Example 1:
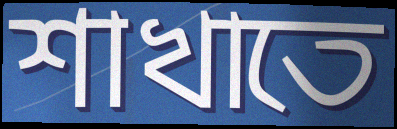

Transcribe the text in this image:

শাখাতে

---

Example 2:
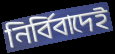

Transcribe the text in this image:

নির্বিবাদেই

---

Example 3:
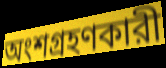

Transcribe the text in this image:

অংশগ্রহণকারী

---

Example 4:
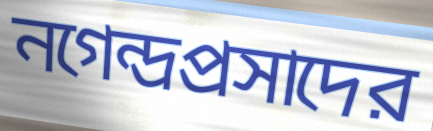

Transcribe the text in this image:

নগেন্দ্রপ্রসাদের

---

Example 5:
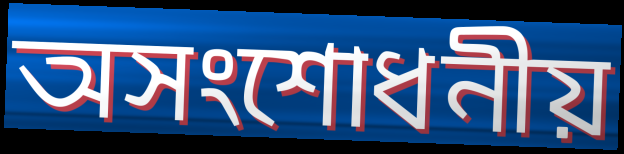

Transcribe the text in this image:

অসংশোধনীয়